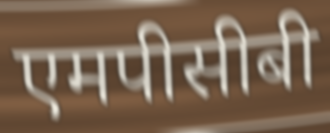
एमपीसीबी